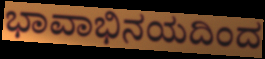
ಭಾವಾಭಿನಯದಿಂದ